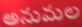
అనుమల